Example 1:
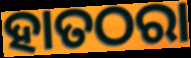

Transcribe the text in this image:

ହାତଠରା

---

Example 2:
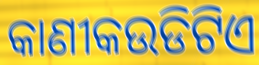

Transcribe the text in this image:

କାଣୀକଉଡିଟିଏ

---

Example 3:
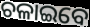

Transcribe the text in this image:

ଚଳାଇବେ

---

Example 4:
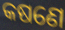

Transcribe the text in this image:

କଷଣେ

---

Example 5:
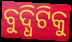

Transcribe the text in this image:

ବୁଦ୍ଧିଟିକୁ